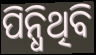
ପିନ୍ଧିଥିବି